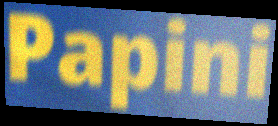
Papini